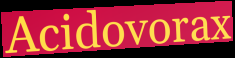
Acidovorax